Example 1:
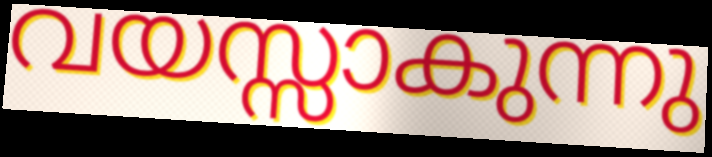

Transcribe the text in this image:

വയസ്സാകുന്നു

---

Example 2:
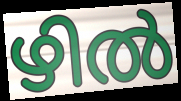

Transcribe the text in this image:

ഴിൽ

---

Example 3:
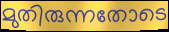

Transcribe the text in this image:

മുതിരുന്നതോടെ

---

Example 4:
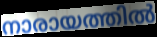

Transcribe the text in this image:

നാരായത്തിൽ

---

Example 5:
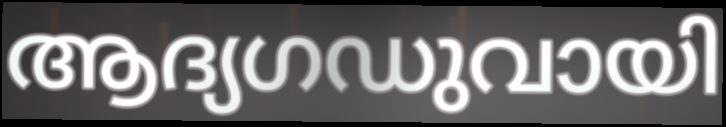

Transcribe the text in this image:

ആദ്യഗഡുവായി